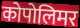
कोपोलिमर